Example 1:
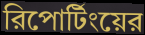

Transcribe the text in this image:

রিপোর্টিংয়ের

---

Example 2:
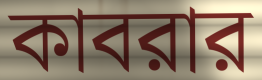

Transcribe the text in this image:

কাবরার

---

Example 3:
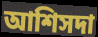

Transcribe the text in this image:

আশিসদা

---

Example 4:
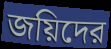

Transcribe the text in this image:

জয়িদের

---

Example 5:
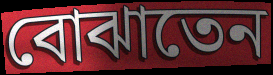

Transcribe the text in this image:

বোঝাতেন